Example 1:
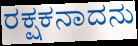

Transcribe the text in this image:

ರಕ್ಷಕನಾದನು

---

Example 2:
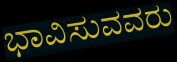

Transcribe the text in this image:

ಭಾವಿಸುವವರು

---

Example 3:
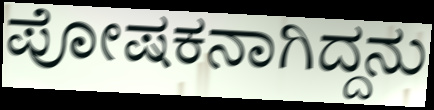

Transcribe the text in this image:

ಪೋಷಕನಾಗಿದ್ದನು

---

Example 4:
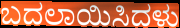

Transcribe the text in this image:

ಬದಲಾಯಿಸಿದಳು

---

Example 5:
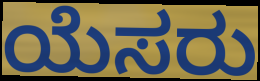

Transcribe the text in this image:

ಯೆಸರು